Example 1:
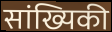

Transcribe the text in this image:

सांख्यिकी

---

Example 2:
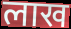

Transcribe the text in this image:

लाख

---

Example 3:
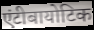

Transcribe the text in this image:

एंटीबायोटिक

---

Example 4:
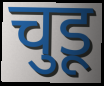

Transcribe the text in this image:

चुडू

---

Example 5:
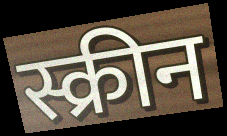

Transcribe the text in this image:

स्क्रीन